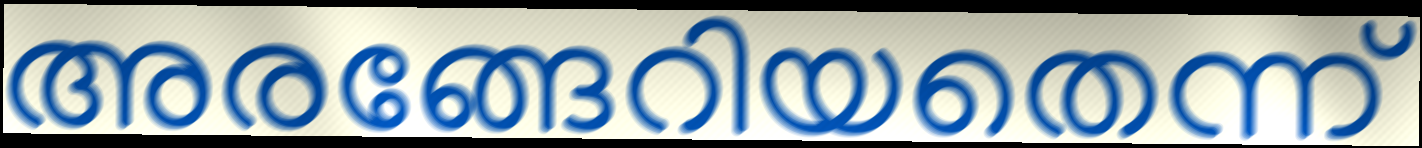
അരങ്ങേറിയതെന്ന്